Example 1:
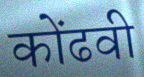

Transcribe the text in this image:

कोंढवी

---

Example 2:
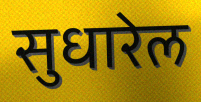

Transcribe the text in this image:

सुधारेल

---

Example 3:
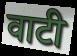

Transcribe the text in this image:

वाटी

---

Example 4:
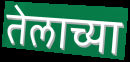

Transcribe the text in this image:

तेलाच्या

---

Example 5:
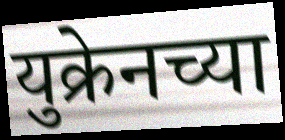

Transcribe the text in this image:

युक्रेनच्या